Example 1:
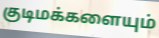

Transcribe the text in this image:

குடிமக்களையும்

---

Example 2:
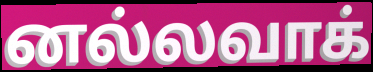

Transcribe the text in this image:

னல்லவாக்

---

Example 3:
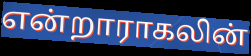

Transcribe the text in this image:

என்றாராகலின்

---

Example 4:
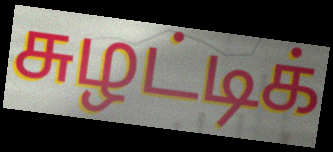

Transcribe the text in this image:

சுழட்டிக்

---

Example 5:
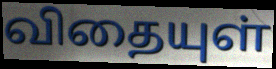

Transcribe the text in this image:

விதையுள்